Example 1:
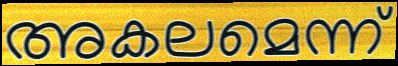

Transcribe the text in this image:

അകലമെന്ന്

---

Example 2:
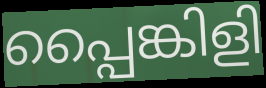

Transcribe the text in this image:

പ്പൈങ്കിളി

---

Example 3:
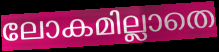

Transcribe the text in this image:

ലോകമില്ലാതെ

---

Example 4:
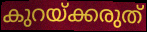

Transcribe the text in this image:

കുറയ്ക്കരുത്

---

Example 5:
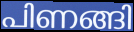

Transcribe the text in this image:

പിണങ്ങി